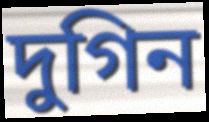
দুগিন